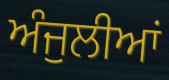
ਅੰਜੁਲੀਆਂ